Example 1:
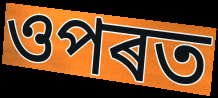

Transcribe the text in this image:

ওপৰত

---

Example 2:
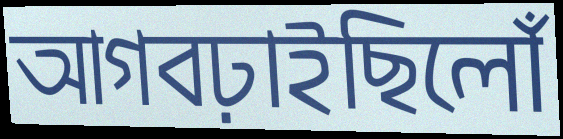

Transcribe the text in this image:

আগবঢ়াইছিলোঁ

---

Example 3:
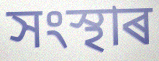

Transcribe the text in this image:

সংস্থাৰ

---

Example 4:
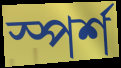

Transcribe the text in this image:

স্পৰ্শ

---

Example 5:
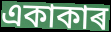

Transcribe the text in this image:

একাকাৰ